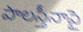
పాలస్తీనాపై